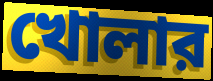
খোলার